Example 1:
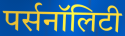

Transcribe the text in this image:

पर्सनॉलिटी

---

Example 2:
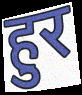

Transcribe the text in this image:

हुर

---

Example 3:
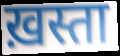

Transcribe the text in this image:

ख़स्ता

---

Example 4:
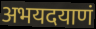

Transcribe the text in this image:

अभयदयाणं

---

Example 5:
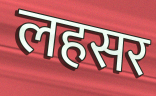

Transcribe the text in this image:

लहसर